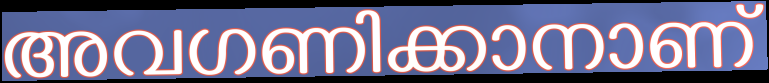
അവഗണിക്കാനാണ്